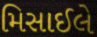
મિસાઈલે